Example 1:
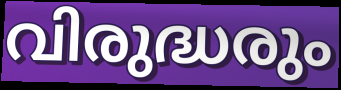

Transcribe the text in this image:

വിരുദ്ധരും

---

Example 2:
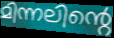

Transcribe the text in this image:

മിന്നലിന്റെ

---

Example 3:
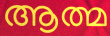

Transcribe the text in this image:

ആത്മ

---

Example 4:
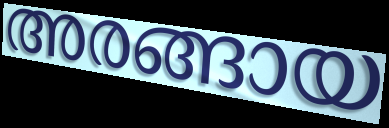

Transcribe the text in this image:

അരങ്ങായ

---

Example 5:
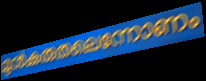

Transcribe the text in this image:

മുൻകരുതലെന്നോണം